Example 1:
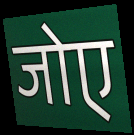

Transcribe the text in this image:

जोए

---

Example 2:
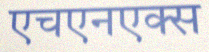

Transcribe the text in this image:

एचएनएक्स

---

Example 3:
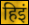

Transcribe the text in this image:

हिइं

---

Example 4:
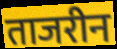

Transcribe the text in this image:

ताजरीन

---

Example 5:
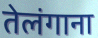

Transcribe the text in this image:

तेलंगाना